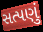
સત્પણું